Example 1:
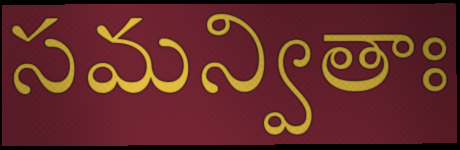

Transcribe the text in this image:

సమన్వితాః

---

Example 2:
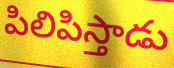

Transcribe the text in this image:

పిలిపిస్తాడు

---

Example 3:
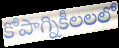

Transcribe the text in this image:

కోపాగ్నికీలలలో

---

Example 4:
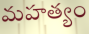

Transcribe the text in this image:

మహత్యం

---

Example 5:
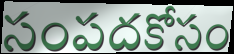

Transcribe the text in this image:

సంపదకోసం